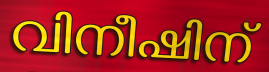
വിനീഷിന്